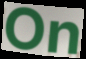
On